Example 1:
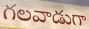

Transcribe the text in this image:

గలవాడుగా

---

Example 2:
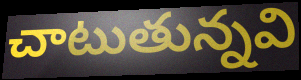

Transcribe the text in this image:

చాటుతున్నవి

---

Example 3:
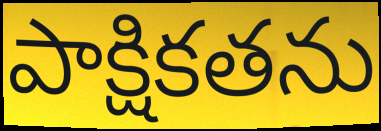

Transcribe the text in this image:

పాక్షికతను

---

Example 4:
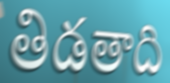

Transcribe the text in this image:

తిడతాది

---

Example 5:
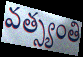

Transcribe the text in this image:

వత్స్యంతి